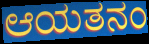
ಆಯತನಂ